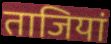
ताजियां